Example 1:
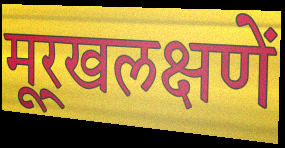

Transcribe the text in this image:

मूर्खलक्षणें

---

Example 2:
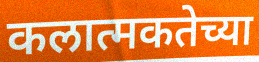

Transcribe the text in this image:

कलात्मकतेच्या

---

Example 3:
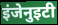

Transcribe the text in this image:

इंजेनुइटी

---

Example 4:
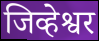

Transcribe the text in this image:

जिव्हेश्वर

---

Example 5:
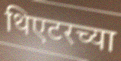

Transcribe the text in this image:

थिएटरच्या